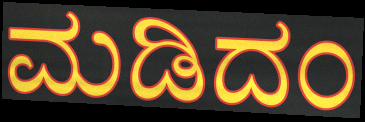
ಮಡಿದಂ